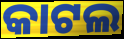
କାଟଲ